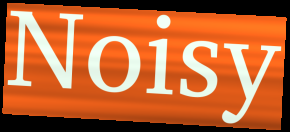
Noisy